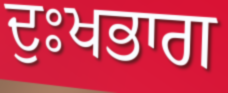
ਦੁਃਖਭਾਗ